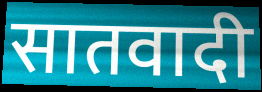
सातवादी